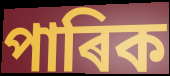
পাৰিক